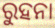
ରୁହନା